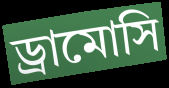
ড্রামোসি